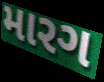
મારગ